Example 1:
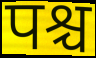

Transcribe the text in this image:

पश्च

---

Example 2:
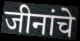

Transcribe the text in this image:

जीनांचे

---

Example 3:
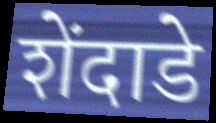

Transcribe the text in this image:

शेंदाडे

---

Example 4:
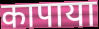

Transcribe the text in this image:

कापाया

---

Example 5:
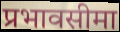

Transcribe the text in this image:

प्रभावसीमा